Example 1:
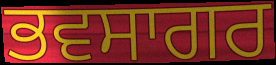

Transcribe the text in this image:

ਭਵਸਾਗਰ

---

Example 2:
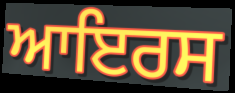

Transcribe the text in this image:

ਆਇਰਸ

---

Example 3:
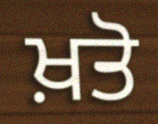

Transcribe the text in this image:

ਖ਼ਤੋ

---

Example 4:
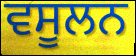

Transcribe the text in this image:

ਵਸੂਲਨ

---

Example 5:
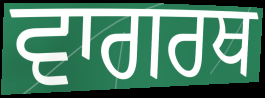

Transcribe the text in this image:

ਵਾਗਰਥ